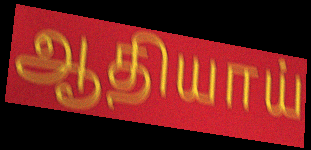
ஆதியாய்